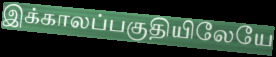
இக்காலப்பகுதியிலேயே